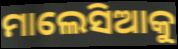
ମାଲେସିଆକୁ